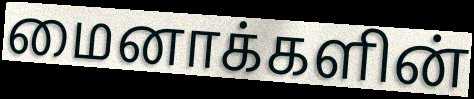
மைனாக்களின்